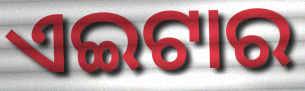
ଏଇଟାର